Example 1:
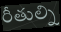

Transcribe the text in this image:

రీతుల్ని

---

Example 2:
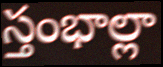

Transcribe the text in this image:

స్తంభాల్లా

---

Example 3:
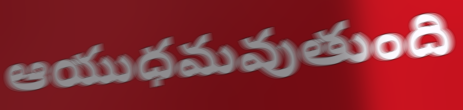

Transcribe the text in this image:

ఆయుధమవుతుంది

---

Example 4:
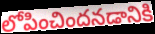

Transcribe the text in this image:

లోపించిందనడానికి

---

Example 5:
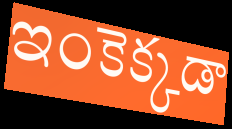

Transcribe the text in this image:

ఇంకెక్కడా